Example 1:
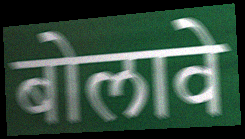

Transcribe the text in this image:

बोलावे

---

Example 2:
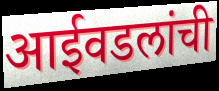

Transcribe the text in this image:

आईवडलांची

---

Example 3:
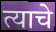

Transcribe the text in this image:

त्याचे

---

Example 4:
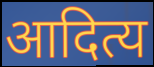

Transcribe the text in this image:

आदित्य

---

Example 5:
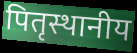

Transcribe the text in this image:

पितृस्थानीय